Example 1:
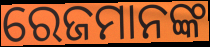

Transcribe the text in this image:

ରେଜମାନଙ୍କ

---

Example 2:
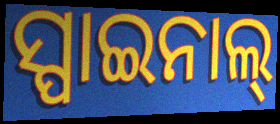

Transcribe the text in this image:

ସ୍ପାଇନାଲ୍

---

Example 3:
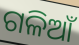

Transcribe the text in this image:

ଗଳିଆଁ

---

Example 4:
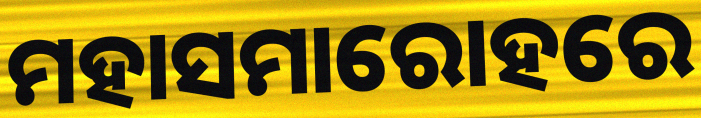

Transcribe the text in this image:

ମହାସମାରୋହରେ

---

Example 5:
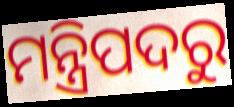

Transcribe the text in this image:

ମନ୍ତ୍ରିପଦରୁ